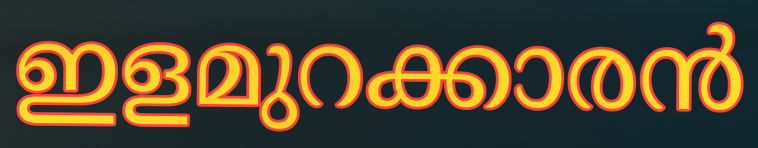
ഇളമുറക്കാരൻ